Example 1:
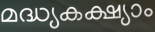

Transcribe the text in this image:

മദ്ധ്യകക്ഷ്യാം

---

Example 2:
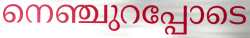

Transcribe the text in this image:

നെഞ്ചുറപ്പോടെ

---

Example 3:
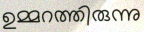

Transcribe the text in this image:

ഉമ്മറത്തിരുന്നു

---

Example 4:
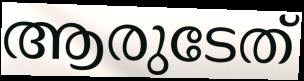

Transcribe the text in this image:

ആരുടേത്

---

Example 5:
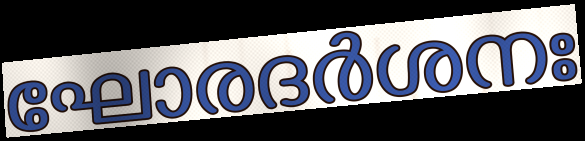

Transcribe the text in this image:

ഘോരദർശനഃ